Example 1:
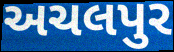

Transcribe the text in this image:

અચલપુર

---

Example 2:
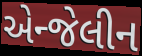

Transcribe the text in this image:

એન્જેલીન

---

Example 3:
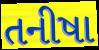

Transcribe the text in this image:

તનીષા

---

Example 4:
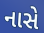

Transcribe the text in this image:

નાસે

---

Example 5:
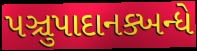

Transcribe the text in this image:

પઞ્ચુપાદાનક્ખન્ધે